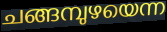
ചങ്ങമ്പുഴയെന്ന